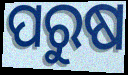
ପରୁଷ